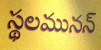
స్థలమునన్